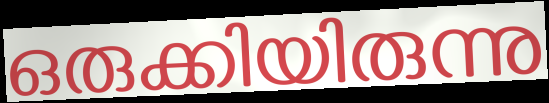
ഒരുക്കിയിരുന്നു